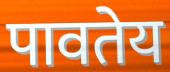
पावतेय